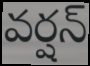
వర్షన్